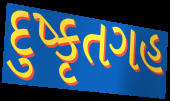
દુષ્કૃતગહ